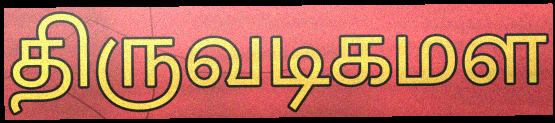
திருவடிகமள